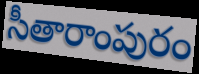
సీతారాంపురం